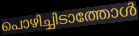
പൊഴിച്ചിടാത്തോൾ